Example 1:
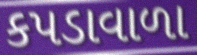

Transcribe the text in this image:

કપડાવાળા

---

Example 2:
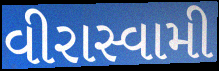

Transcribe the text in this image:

વીરાસ્વામી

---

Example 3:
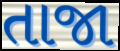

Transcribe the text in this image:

તાજા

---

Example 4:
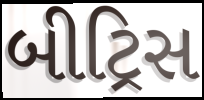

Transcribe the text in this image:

બીટ્રિસ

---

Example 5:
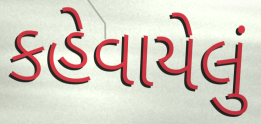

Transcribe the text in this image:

કહેવાયેલું